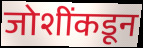
जोशींकडून